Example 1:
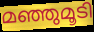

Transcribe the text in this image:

മഞ്ഞുമൂടി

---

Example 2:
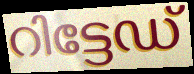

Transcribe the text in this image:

റിട്ടേഡ്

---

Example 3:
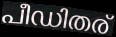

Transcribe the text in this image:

പീഡിതര്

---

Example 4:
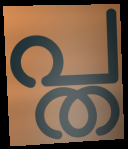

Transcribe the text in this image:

പ്ത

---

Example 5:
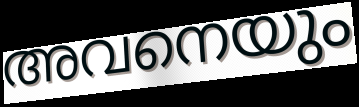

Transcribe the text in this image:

അവനെയും